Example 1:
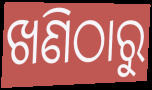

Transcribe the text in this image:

ଖଣିଠାରୁ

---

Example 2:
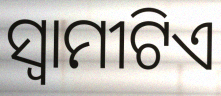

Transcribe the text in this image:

ସ୍ୱାମୀଟିଏ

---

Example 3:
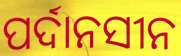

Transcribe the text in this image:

ପର୍ଦାନସୀନ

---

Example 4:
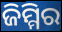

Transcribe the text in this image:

ଜିମ୍ମିର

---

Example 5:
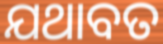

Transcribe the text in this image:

ଯଥାବତ